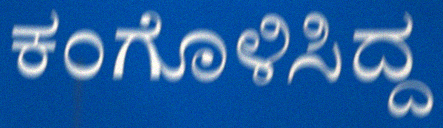
ಕಂಗೊಳಿಸಿದ್ದ